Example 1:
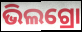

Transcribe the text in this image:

ଭିଲଗ୍ରୋ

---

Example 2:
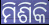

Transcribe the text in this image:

ମିଶିକି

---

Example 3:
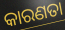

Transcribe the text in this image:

କାରଣତା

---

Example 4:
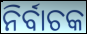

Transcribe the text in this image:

ନିର୍ବାଚକ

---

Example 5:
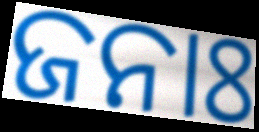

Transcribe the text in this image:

ଜନାଃ